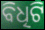
ବିଧିଟି